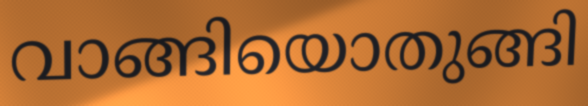
വാങ്ങിയൊതുങ്ങി